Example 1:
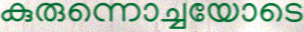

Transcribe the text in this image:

കുരുന്നൊച്ചയോടെ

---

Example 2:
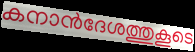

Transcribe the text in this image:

കനാൻദേശത്തുകൂടെ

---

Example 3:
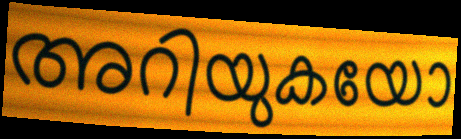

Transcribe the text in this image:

അറിയുകയോ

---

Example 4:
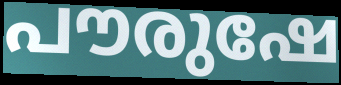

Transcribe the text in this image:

പൗരുഷേ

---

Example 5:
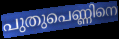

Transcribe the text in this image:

പുതുപെണ്ണിനെ